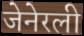
जेनेरली